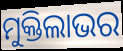
ମୁକ୍ତିଲାଭର